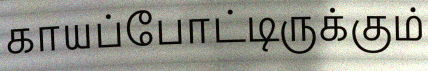
காயப்போட்டிருக்கும்